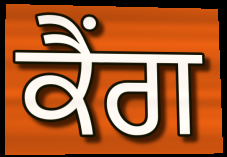
ਕੈਂਗ